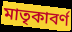
মাতৃকাবর্ণ